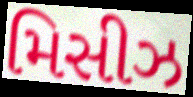
મિસીઝ